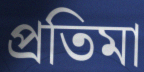
প্রতিমা